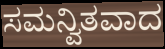
ಸಮನ್ವಿತವಾದ